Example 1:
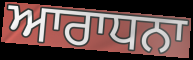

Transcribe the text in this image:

ਆਰਾਧਨਾ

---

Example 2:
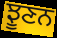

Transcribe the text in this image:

ਝੂਣਨ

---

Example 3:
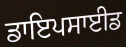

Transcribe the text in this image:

ਡਾਇਪਸਾਈਡ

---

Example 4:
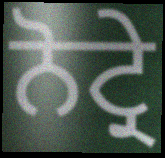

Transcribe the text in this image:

ਨੋਟ੍ਰੇ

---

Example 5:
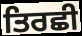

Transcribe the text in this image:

ਤਿਰਛੀ